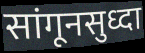
सांगूनसुध्दा